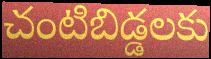
చంటిబిడ్డలకు